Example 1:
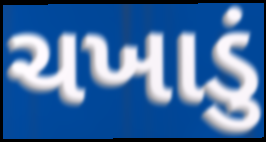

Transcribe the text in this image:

ચખાડું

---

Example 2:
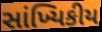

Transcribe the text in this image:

સાંખ્યિકીય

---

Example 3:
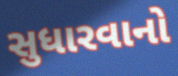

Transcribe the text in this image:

સુધારવાનો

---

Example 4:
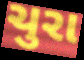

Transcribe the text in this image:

ચુરા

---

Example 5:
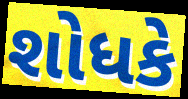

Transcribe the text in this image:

શોધકે